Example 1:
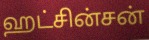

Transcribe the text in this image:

ஹட்சின்சன்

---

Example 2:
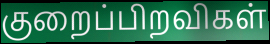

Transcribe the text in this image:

குறைப்பிறவிகள்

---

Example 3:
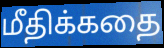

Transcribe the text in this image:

மீதிக்கதை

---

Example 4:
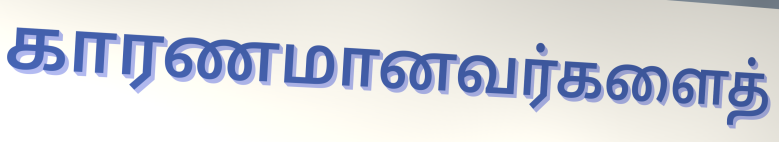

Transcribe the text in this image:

காரணமானவர்களைத்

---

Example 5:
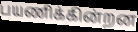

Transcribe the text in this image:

பயணிக்கின்றன